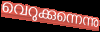
വെറുക്കുന്നെന്നു